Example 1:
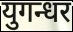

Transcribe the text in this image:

युगन्धर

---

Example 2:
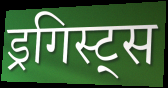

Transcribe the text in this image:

ड्रगिस्ट्स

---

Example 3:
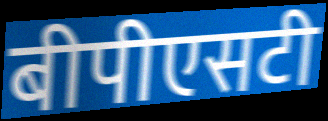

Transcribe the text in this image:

बीपीएसटी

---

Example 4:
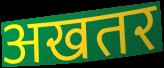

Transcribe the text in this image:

अखतर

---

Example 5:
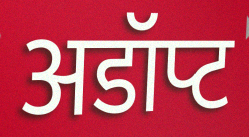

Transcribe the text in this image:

अडॉप्‍ट